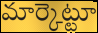
మార్కెట్టూ